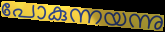
പോകുന്നയന്നു